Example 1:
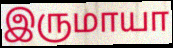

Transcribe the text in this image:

இருமாயா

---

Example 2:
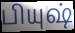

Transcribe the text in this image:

பியுஷ்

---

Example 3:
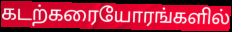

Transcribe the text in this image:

கடற்கரையோரங்களில்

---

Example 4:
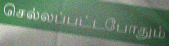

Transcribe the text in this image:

செல்லப்பட்டபோதும்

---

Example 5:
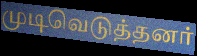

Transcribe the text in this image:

முடிவெடுத்தனர்